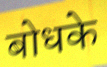
बोधके